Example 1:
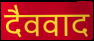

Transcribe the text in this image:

दैववाद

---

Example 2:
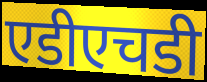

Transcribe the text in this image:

एडीएचडी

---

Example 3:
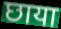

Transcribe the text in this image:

छाया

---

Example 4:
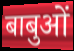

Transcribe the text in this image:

बाबुओं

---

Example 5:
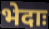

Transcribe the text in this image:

भेदाः